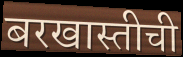
बरखास्तीची